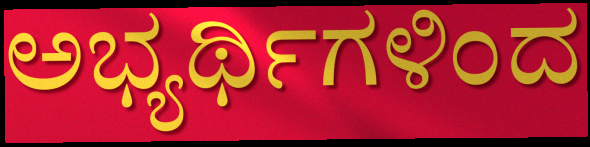
ಅಭ್ಯರ್ಥಿಗಳಿಂದ